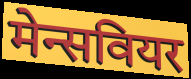
मेन्सवियर